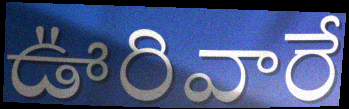
ఊరివారే